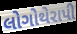
લોગોથેરાપી